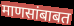
माणसांबाबत